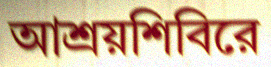
আশ্রয়শিবিরে